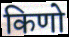
किणो